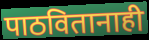
पाठवितानाही